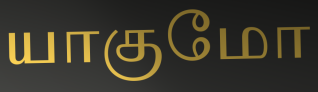
யாகுமோ